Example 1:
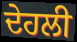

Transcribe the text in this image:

ਦੇਹਲੀ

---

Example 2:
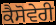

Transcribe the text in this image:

ਕੈਸੋਵੇਰੀ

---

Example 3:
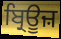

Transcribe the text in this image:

ਬ੍ਰਿਊਜ਼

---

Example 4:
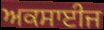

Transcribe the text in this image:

ਅਕਸਾਈਜ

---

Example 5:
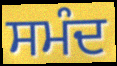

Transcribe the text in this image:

ਸਮੰਦ